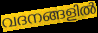
വദനങ്ങളിൽ